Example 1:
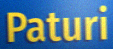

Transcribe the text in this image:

Paturi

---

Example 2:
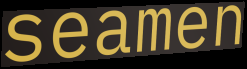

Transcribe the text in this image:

seamen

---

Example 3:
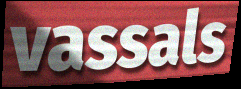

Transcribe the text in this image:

vassals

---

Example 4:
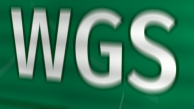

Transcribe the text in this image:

WGS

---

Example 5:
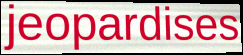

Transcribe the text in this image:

jeopardises